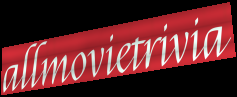
allmovietrivia